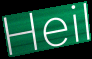
Heil